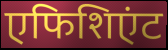
एफिशिएंट